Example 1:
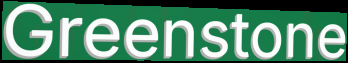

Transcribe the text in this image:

Greenstone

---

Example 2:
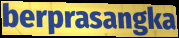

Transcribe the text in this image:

berprasangka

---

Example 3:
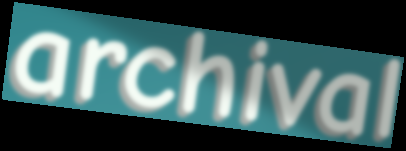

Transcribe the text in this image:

archival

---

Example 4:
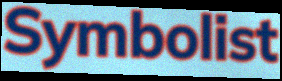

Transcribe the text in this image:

Symbolist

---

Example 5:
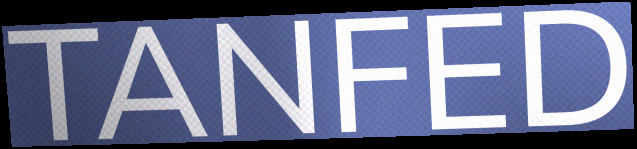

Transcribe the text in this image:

TANFED